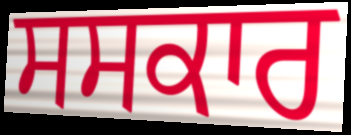
ਸਸਕਾਰ